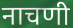
नाचणी